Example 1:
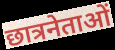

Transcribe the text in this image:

छात्रनेताओं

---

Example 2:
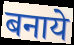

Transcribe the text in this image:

बनाये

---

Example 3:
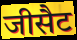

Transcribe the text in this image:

जीसैट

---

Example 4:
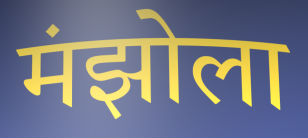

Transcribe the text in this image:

मंझोला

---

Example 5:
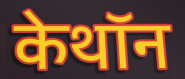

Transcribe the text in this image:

केथॉन